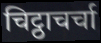
चिट्ठाचर्चा